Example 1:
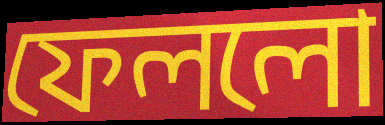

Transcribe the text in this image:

ফেললো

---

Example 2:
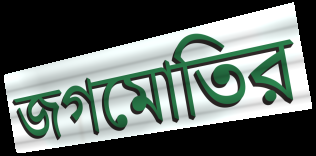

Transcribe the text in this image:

জগমোতির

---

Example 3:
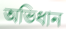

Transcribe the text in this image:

অভিধান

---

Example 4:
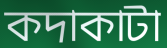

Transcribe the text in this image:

কদাকাটা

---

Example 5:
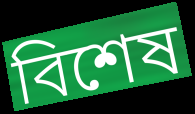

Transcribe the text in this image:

বিশেষ